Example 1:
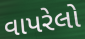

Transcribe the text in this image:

વાપરેલો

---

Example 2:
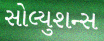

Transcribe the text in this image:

સોલ્યુશન્સ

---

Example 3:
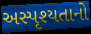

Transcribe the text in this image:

અસ્પૃશ્યતાનો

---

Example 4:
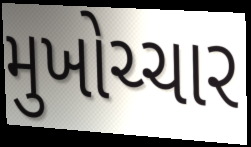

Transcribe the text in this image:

મુખોચ્ચાર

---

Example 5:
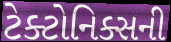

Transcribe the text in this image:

ટેક્ટોનિક્સની